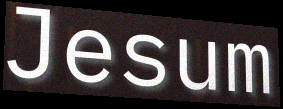
Jesum